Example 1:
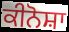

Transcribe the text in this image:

ਕੀਨੋਸ਼ਾ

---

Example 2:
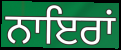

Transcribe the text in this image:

ਨਾਇਰਾਂ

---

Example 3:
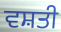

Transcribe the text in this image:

ਵਸ਼ਤੀ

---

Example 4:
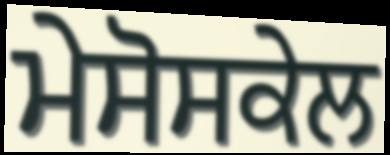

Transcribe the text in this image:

ਮੇਸੋਸਕੇਲ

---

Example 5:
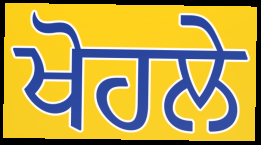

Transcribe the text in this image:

ਖੋਹਲੇ